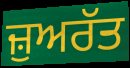
ਜ਼ੁਅਰੱਤ